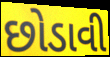
છોડાવી